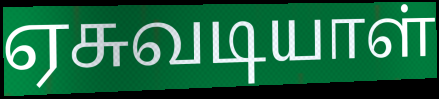
ஏசுவடியாள்